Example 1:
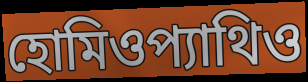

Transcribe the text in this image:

হোমিওপ্যাথিও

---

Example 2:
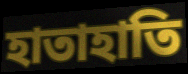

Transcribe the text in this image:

হাতাহাতি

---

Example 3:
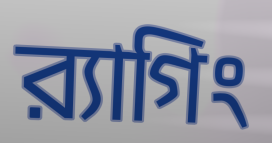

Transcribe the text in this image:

র‍্যাগিং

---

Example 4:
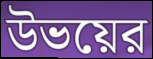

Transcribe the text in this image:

উভয়ের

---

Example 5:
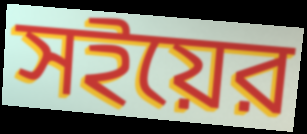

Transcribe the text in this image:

সইয়ের